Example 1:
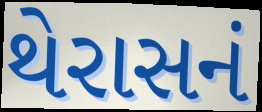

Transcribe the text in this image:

થેરાસનં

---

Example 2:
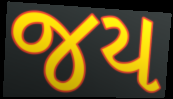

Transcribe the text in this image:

જય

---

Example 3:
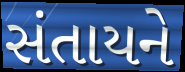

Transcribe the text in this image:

સંતાયને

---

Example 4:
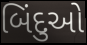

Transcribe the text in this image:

બિંદુઓ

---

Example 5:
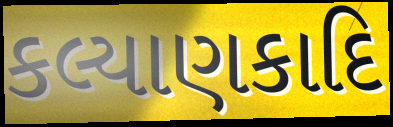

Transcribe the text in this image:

કલ્યાણકાદિ